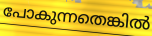
പോകുന്നതെങ്കിൽ